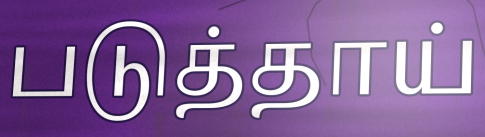
படுத்தாய்